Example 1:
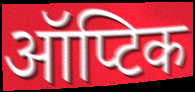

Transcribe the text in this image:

ऑप्टिक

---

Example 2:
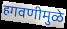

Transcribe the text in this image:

हगवणीमुळे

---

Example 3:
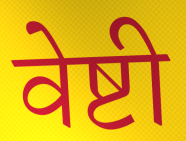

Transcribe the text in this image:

वेष्टी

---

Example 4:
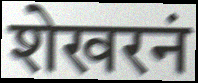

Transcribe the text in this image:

शेखरनं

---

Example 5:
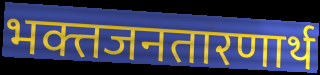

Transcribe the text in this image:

भक्तजनतारणार्थ